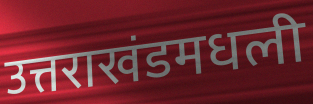
उत्तराखंडमधली